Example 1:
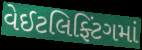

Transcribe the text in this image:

વેઈટલિફ્ટિંગમાં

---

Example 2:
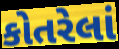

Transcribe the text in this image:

કોતરેલાં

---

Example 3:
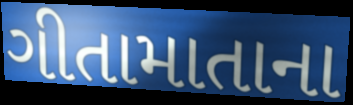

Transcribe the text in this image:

ગીતામાતાના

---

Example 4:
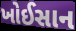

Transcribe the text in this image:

ખોઈસાન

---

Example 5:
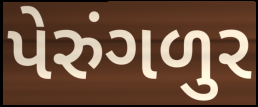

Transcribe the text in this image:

પેરુંગળુર